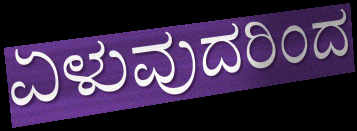
ಏಳುವುದರಿಂದ